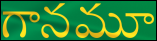
గానమూ